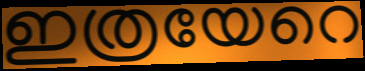
ഇത്രയേറെ